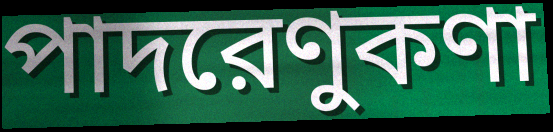
পাদরেণুকণা